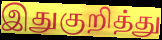
இதுகுறித்து